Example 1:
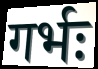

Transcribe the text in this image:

गर्भः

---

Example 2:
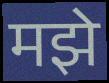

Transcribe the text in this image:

मझे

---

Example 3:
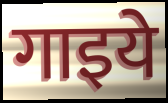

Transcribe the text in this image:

गाइये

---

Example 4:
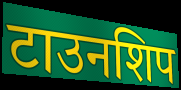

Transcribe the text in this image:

टाउनशिप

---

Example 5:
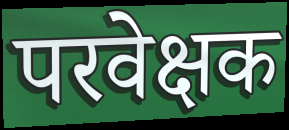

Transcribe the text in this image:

परवेक्षक